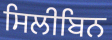
ਸਿਲੀਬਿਨ